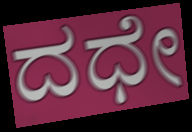
ದಧೇ